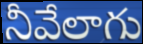
నీవేలాగు